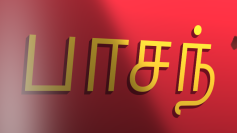
பாசந்